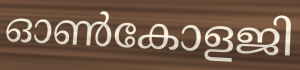
ഓൺകോളജി